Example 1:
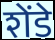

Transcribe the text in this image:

शेंडे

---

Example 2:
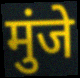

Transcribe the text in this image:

मुंजे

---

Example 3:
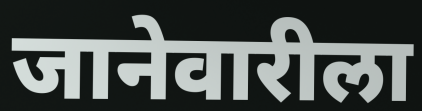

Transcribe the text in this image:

जानेवारीला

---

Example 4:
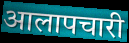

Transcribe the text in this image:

आलापचारी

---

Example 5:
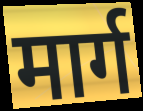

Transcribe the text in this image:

मार्ग